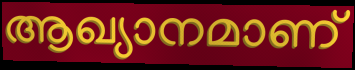
ആഖ്യാനമാണ്